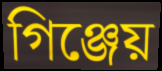
গিঞ্জেয়